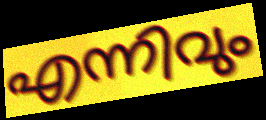
എന്നിവും